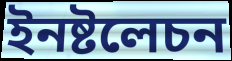
ইনষ্টলেচন